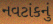
નવટાંકનું